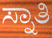
ಸ್ನಾತಿ